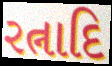
રત્નાદિ